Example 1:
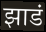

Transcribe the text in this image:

झाडं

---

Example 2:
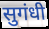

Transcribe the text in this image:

सुगंधी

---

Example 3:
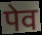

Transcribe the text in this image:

पेव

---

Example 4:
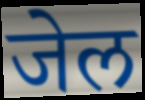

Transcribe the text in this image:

जेल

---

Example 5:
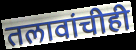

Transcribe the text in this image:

तलावांचीही